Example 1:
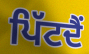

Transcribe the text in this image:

ਪਿੱਟਦੈਂ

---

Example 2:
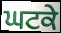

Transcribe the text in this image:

ਘਟਕੇ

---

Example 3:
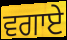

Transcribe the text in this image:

ਵਗਾਏ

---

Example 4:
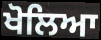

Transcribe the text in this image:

ਖੋਲਿਆ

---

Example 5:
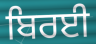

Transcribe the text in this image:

ਬਿਰਈ